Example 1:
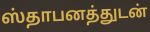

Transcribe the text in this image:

ஸ்தாபனத்துடன்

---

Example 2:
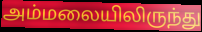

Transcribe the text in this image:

அம்மலையிலிருந்து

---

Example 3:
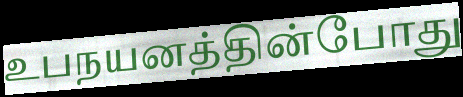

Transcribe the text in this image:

உபநயனத்தின்போது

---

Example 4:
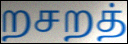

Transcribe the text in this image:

றசறத்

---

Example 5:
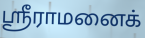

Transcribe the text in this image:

ஸ்ரீராமனைக்